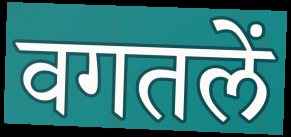
वगतलें